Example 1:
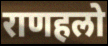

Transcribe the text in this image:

राणहलो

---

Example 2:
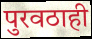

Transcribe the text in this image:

पुरवठाही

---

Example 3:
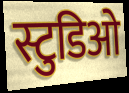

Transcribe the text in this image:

स्टुडिओ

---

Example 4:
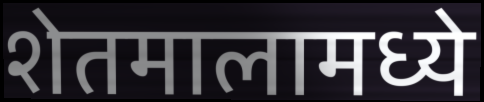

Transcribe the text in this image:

शेतमालामध्ये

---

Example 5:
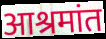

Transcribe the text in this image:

आश्रमांत